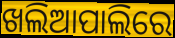
ଖଲିଆପାଲିରେ